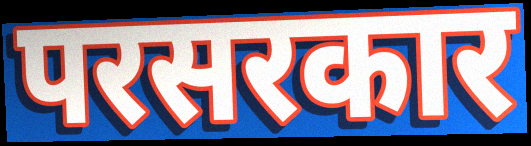
परसरकार